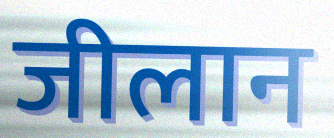
जीलान